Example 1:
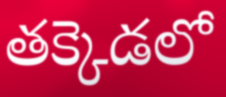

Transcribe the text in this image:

తక్కెడలో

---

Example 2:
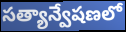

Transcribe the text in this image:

సత్యాన్వేషణలో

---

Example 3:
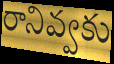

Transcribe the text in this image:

రానివ్వకు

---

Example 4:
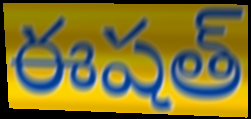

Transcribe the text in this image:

ఈషత్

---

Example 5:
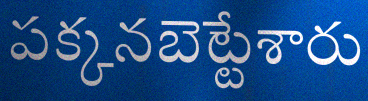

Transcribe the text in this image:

పక్కనబెట్టేశారు